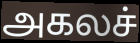
அகலச்